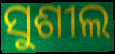
ସୁଶୀଲ